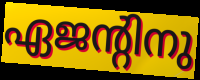
ഏജന്റിനു